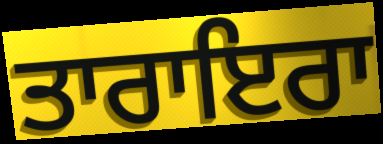
ਤਾਰਾਇਰਾ